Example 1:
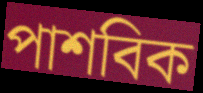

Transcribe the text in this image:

পাশবিক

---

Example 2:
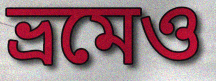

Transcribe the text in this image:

ভ্রমেও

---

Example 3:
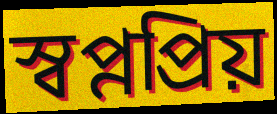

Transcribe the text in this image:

স্বপ্নপ্রিয়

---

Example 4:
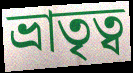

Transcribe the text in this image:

ভ্রাতৃত্ব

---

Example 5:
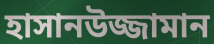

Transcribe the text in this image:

হাসানউজ্জামান